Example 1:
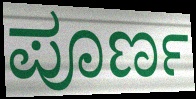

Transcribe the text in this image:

ಪೂರ್ಣ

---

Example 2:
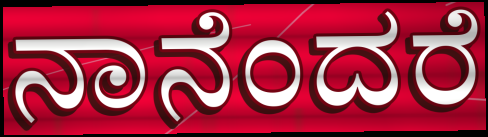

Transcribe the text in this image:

ನಾನೆಂದರೆ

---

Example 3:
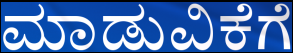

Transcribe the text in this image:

ಮಾಡುವಿಕೆಗೆ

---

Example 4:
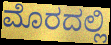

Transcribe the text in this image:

ಮೊರದಲ್ಲಿ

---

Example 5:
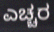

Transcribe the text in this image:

ಎಚ್ಚರ